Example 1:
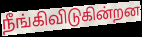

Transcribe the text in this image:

நீங்கிவிடுகின்றன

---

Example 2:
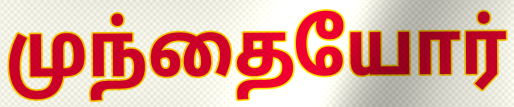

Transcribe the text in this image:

முந்தையோர்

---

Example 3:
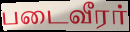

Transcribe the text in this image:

படைவீரர்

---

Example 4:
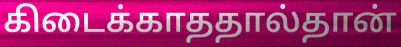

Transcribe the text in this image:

கிடைக்காததால்தான்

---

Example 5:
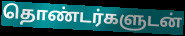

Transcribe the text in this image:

தொண்டர்களுடன்